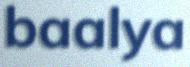
baalya